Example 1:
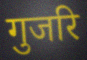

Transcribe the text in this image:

गुजरि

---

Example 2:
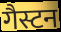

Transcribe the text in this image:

गैस्टन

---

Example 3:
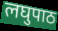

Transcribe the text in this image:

लघुपाठ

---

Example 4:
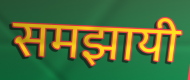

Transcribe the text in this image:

समझायी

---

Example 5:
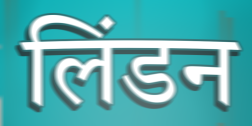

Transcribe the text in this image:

लिंडन